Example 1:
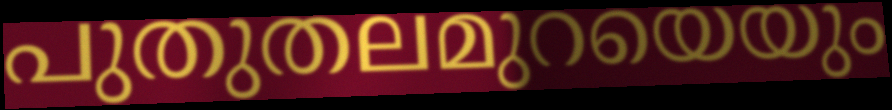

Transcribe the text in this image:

പുതുതലമുറയെയും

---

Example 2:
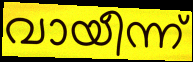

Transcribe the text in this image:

വായീന്ന്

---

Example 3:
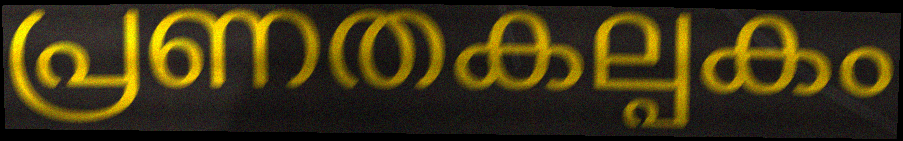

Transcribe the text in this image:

പ്രണതകല്പകം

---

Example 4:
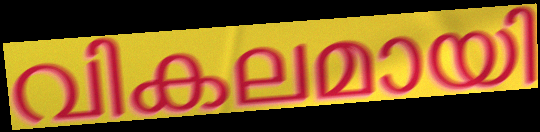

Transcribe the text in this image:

വികലമായി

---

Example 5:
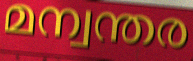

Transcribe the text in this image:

മന്വന്തര